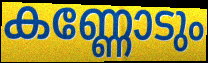
കണ്ണോടും